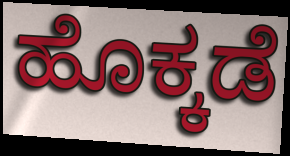
ಹೊಕ್ಕಡೆ